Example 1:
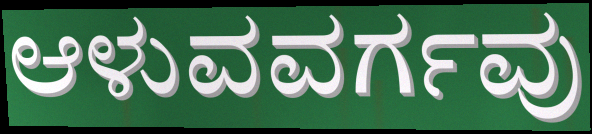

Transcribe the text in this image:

ಆಳುವವರ್ಗವು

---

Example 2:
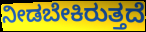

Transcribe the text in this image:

ನೀಡಬೇಕಿರುತ್ತದೆ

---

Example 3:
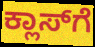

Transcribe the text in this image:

ಕ್ಲಾಸ್‌ಗೆ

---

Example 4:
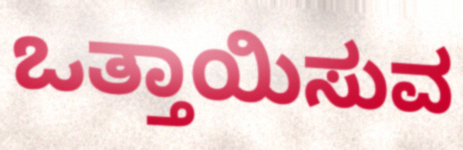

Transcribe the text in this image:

ಒತ್ತಾಯಿಸುವ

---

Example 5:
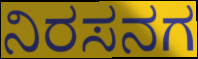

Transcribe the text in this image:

ನಿರಸನಗ